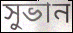
সুভান